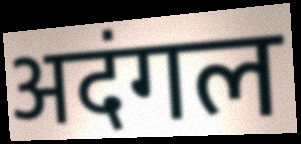
अदंगल